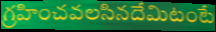
గ్రహించవలసినదేమిటంటే